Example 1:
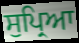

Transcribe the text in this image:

ਸੁਪ੍ਰਿਆ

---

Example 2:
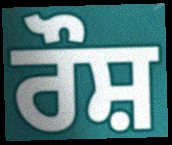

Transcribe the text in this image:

ਰੌਸ਼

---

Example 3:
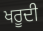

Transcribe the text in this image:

ਖਰੂਦੀ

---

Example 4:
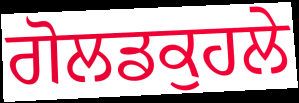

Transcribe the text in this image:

ਗੋਲਡਕੁਹਲੇ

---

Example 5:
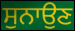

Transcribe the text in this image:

ਸੁਨਾਉਣ